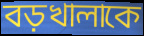
বড়খালাকে